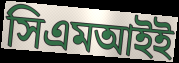
সিএমআইই